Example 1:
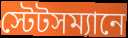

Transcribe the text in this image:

স্টেটসম্যানে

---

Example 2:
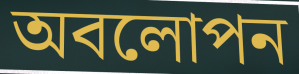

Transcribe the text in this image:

অবলোপন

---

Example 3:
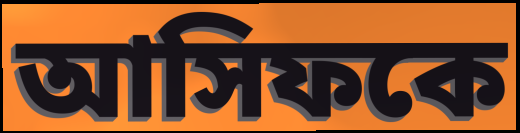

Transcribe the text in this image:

আসিফকে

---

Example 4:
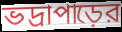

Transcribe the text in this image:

ভদ্রাপাড়ের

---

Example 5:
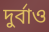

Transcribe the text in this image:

দুর্বাও